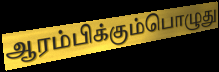
ஆரம்பிக்கும்பொழுது